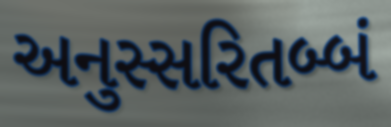
અનુસ્સરિતબ્બં